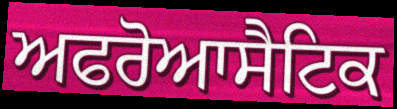
ਅਫਰੋਆਸੈਟਿਕ